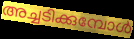
അച്ചടിക്കുമ്പോൾ